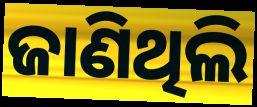
ଜାଣିଥିଲି